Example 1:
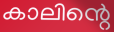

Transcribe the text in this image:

കാലിന്റെ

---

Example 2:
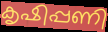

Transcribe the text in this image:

കൃഷിപ്പണി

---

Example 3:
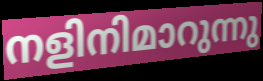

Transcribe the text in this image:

നളിനിമാറുന്നു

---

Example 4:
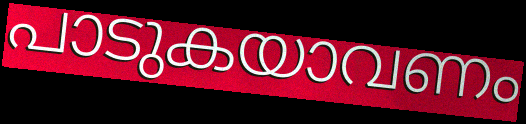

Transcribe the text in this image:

പാടുകയാവണം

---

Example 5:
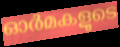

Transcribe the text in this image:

ഓർമകളുടെ